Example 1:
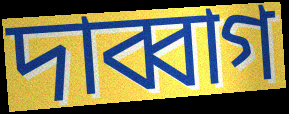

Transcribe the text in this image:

দাব্বাগ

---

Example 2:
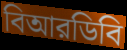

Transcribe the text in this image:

বিআরডিবি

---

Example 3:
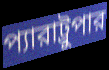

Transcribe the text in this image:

প্যারাট্রুপার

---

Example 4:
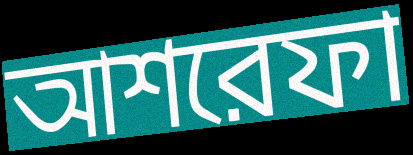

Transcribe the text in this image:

আশরেফা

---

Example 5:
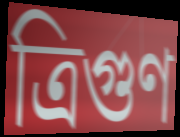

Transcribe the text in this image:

ত্রিগুণ